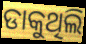
ଡାକୁଥିଲି